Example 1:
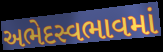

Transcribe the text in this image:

અભેદસ્વભાવમાં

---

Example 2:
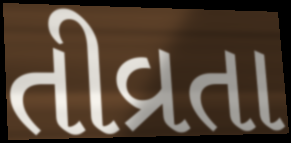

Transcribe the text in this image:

તીવ્રતા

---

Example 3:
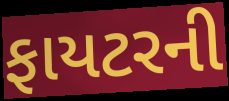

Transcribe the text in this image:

ફાયટરની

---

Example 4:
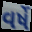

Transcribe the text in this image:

વર્ષે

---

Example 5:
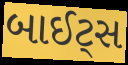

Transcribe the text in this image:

બાઈટ્સ